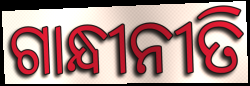
ଗାନ୍ଧୀନୀତି